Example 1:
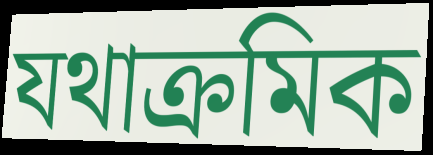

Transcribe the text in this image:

যথাক্ৰমিক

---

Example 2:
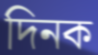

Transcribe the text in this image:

দিনক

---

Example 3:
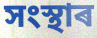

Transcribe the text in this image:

সংস্থাৰ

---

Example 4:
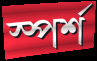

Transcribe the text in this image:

স্পৰ্শ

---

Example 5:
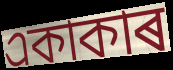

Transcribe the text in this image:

একাকাৰ